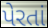
પેરતાં